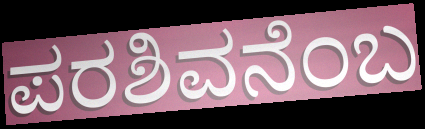
ಪರಶಿವನೆಂಬ